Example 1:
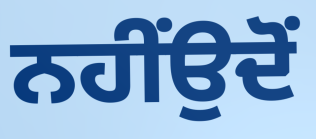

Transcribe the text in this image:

ਨਹੀਂਉਦੋਂ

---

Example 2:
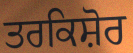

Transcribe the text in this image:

ਤਰਕਿਸ਼ੋਰ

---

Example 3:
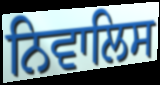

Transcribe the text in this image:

ਨਿਵਾਲਿਸ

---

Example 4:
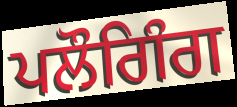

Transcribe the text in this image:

ਪਲੌਗਿੰਗ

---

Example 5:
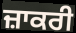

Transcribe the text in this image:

ਜ਼ਾਕਰੀ